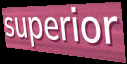
superior